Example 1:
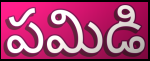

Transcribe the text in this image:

పమిడి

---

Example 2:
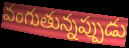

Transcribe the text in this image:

వంగుతున్నప్పుడు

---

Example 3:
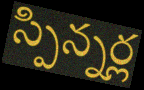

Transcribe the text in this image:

స్పిన్నర్ల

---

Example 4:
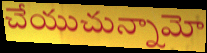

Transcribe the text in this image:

చేయుచున్నామో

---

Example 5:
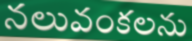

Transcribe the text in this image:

నలువంకలను